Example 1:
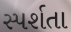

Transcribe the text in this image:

સ્પર્શતા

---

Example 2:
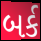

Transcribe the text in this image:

બર્ક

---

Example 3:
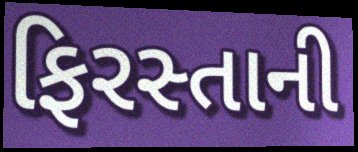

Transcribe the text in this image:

ફિરસ્તાની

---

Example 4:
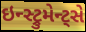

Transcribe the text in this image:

ઇન્સ્ટ્રુમેન્ટ્સે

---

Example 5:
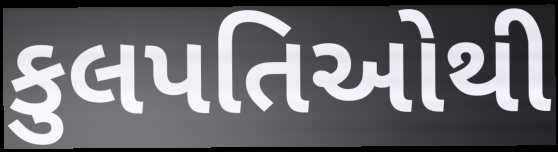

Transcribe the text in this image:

કુલપતિઓથી